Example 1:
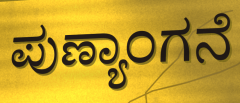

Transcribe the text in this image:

ಪುಣ್ಯಾಂಗನೆ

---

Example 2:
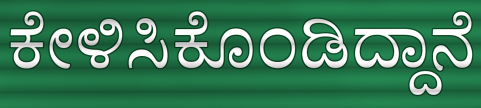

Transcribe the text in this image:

ಕೇಳಿಸಿಕೊಂಡಿದ್ದಾನೆ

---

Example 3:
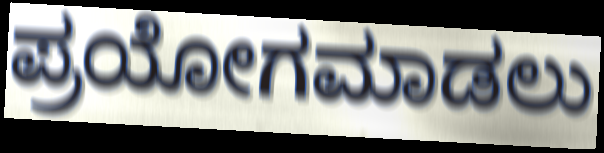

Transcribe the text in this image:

ಪ್ರಯೋಗಮಾಡಲು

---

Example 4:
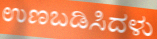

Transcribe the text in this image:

ಉಣಬಡಿಸಿದಳು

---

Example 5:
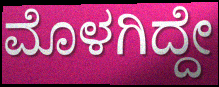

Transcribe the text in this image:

ಮೊಳಗಿದ್ದೇ